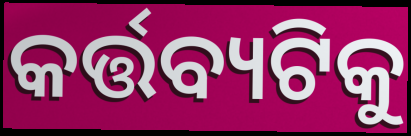
କର୍ତ୍ତବ୍ୟଟିକୁ